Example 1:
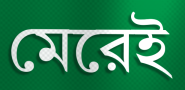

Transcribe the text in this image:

মেরেই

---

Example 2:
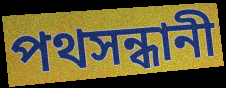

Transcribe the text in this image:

পথসন্ধানী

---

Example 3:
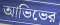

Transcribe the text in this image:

আভিভের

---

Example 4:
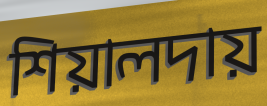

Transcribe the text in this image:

শিয়ালদায়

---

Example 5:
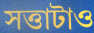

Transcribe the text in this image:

সত্তাটাও